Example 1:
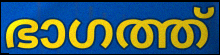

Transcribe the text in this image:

ഭാഗത്ത്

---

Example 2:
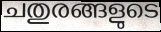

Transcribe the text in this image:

ചതുരങ്ങളുടെ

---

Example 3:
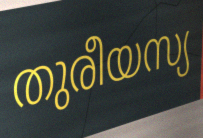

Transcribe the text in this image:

തുരീയസ്യ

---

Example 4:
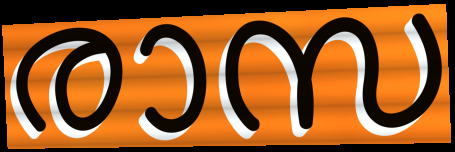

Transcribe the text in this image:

രാസ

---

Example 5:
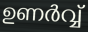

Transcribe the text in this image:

ഉണർവ്വ്